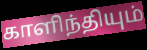
காளிந்தியும்